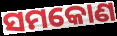
ସମକୋଣ